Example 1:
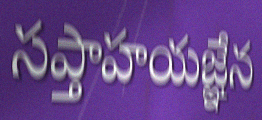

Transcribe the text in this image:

సప్తాహయజ్ఞేన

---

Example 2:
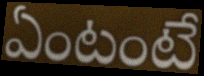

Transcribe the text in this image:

ఏంటంటే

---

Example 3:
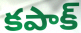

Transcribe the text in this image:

కపాక్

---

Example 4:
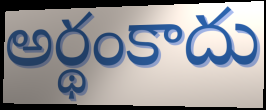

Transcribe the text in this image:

అర్థంకాదు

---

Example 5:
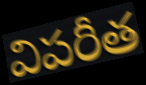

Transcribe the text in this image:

విపరీత